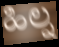
ಹಿಲ್ನ